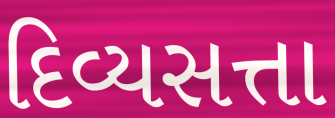
દિવ્યસત્તા